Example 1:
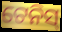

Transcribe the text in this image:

ଟେନିସ୍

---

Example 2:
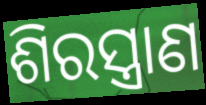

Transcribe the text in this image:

ଶିରସ୍ତ୍ରାଣ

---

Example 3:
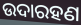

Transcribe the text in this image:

ଉଦାରହଣ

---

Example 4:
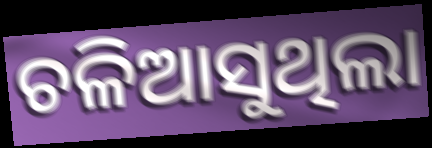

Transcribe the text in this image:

ଚଳିଆସୁଥିଲା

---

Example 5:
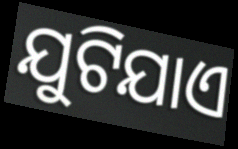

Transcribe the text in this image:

ଯୁଟିଯାଏ